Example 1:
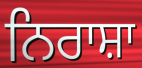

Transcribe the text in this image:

ਨਿਰਾਸ਼ਾ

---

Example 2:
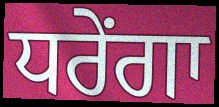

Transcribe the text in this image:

ਧਰੇਂਗਾ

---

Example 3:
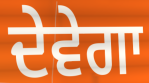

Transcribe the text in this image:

ਦੇਵੇਗਾ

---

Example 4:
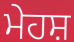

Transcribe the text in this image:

ਮੇਹਸ਼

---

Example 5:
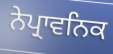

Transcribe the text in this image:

ਨੇਪ੍ਰਾਵਨਿਕ